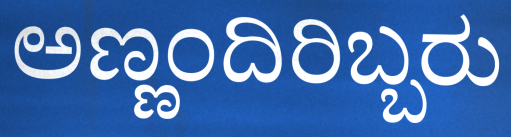
ಅಣ್ಣಂದಿರಿಬ್ಬರು